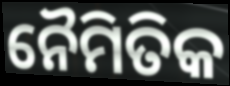
ନୈମିତିକ